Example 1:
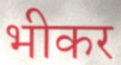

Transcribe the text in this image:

भीकर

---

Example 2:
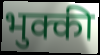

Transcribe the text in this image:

भुक्की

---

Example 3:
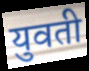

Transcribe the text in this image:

युवती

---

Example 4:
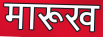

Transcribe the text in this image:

मारूख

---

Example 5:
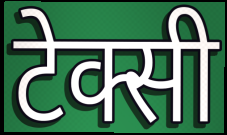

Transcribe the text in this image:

टेक्सी